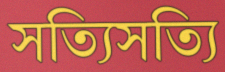
সত্যিসত্যি